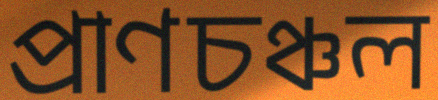
প্রাণচঞ্চল